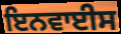
ਇਨਵਾਈਸ